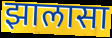
झालासा